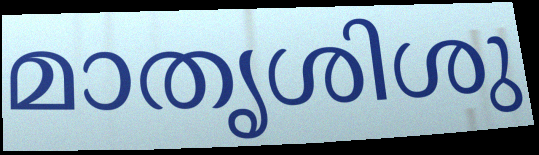
മാതൃശിശു